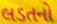
લડતનો